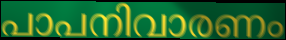
പാപനിവാരണം